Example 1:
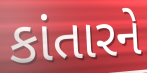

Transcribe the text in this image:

કાંતારને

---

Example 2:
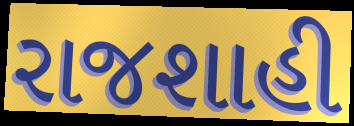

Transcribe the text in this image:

રાજશાહી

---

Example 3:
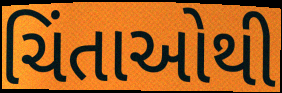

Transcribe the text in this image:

ચિંતાઓથી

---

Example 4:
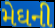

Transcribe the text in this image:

મેઘની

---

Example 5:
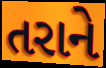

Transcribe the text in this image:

તરાને